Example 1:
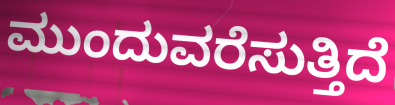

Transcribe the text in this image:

ಮುಂದುವರೆಸುತ್ತಿದೆ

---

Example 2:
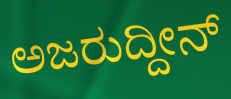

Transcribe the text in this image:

ಅಜರುದ್ದೀನ್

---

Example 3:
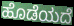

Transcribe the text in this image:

ಹೊಡೆಯದೆ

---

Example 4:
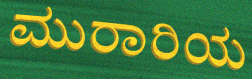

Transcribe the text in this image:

ಮುರಾರಿಯ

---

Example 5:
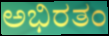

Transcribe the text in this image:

ಅಭಿರತಂ